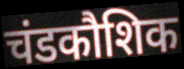
चंडकौशिक